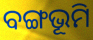
ବଙ୍ଗଭୂମି